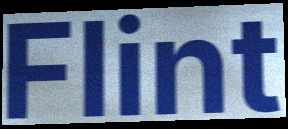
Flint